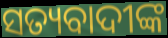
ସତ୍ୟବାଦୀଙ୍କ